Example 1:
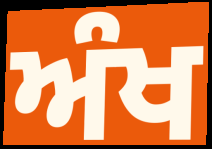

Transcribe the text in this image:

ਅੰਖ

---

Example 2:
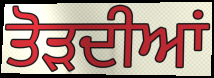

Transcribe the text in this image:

ਤੋੜਦੀਆਂ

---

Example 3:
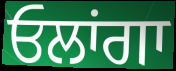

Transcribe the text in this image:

ਓਲਾਂਗਾ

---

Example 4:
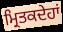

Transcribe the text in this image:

ਮ੍ਰਿਤਕਦੇਹਾਂ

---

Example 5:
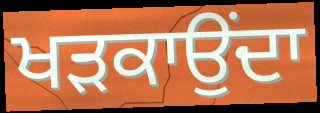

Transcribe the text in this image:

ਖੜਕਾਉਂਦਾ